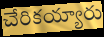
చేరికయ్యారు